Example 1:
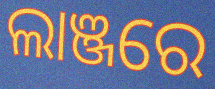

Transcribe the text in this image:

ଲାଞ୍ଜରେ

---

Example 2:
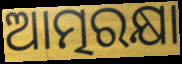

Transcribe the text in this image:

ଆତ୍ମରକ୍ଷା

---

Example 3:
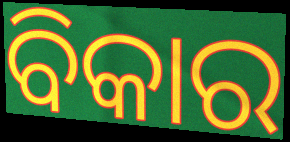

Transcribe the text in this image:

ବିକାର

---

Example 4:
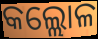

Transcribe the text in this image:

କଲ୍ଲୋଳ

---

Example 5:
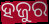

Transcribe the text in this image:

ହଜୁର